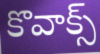
కొవాక్స్